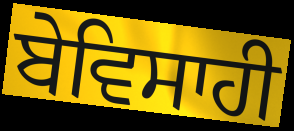
ਬੇਵਿਸਾਹੀ